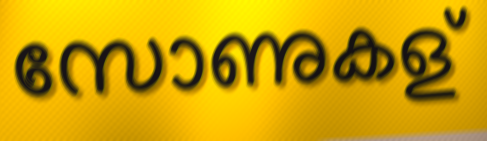
സോണുകള്